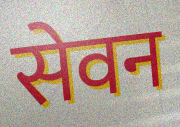
सेवन